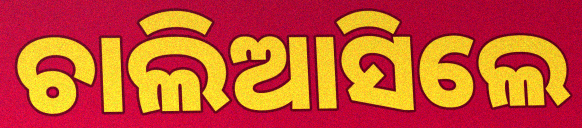
ଚାଲିଆସିଲେ